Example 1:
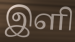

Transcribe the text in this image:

இளி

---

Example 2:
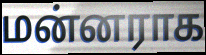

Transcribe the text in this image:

மன்னராக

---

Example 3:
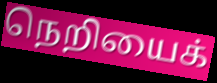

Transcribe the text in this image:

நெறியைக்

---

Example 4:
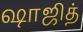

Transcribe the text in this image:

ஷாஜித்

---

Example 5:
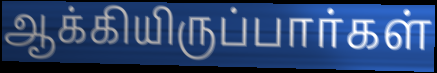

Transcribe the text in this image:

ஆக்கியிருப்பார்கள்